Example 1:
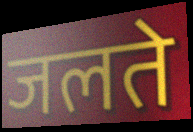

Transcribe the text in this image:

जलते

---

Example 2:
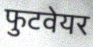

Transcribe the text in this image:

फुटवेयर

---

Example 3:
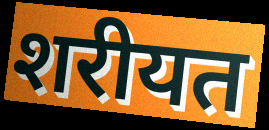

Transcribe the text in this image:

शरीयत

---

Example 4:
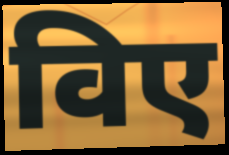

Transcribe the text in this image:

विए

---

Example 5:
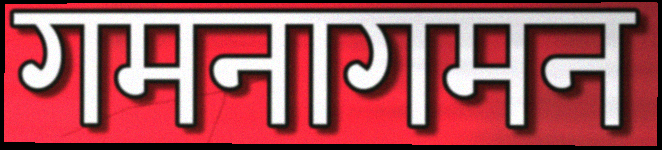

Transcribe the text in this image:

गमनागमन